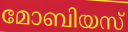
മോബിയസ്